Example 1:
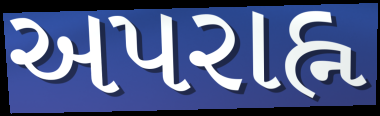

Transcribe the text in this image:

અપરાહ્ન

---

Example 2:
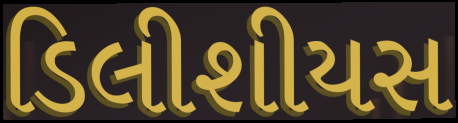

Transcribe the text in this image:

ડિલીશીયસ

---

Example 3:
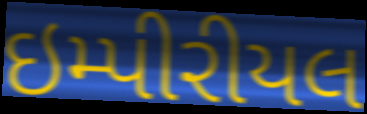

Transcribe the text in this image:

ઇમ્પીરીયલ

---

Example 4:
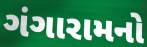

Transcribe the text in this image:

ગંગારામનો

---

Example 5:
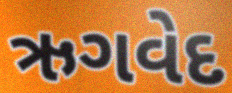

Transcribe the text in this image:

ઋગવેદ